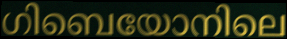
ഗിബെയോനിലെ